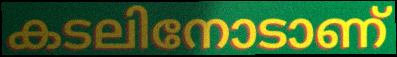
കടലിനോടാണ്